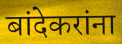
बांदेकरांना